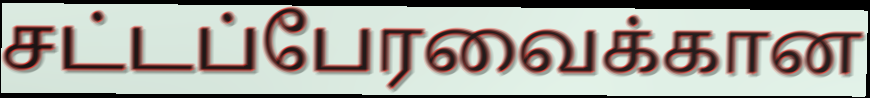
சட்டப்பேரவைக்கான